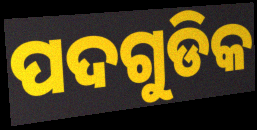
ପଦଗୁଡିକ